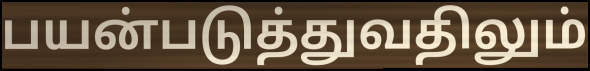
பயன்படுத்துவதிலும்